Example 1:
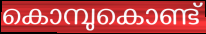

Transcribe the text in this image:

കൊമ്പുകൊണ്ട്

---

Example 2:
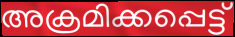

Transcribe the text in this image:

അക്രമിക്കപ്പെട്ട്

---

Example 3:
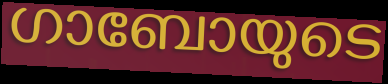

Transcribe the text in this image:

ഗാബോയുടെ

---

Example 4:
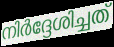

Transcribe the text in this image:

നിർദ്ദേശിച്ചത്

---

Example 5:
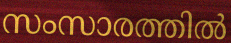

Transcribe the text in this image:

സംസാരത്തിൽ